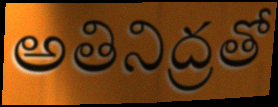
అతినిద్రతో